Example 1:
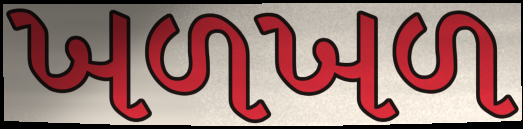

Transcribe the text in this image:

ખળખળ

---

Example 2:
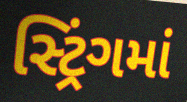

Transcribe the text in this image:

સ્ટ્રિંગમાં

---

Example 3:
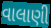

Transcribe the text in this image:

વાલાણી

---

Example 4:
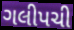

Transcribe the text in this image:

ગલીપચી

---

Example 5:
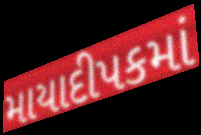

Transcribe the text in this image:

માયાદીપકમાં